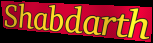
Shabdarth